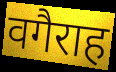
वगैराह